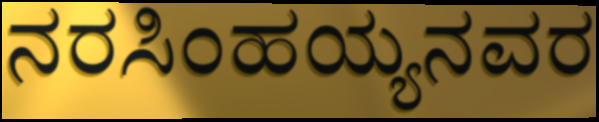
ನರಸಿಂಹಯ್ಯನವರ